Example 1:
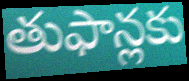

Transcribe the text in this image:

తుఫాన్లకు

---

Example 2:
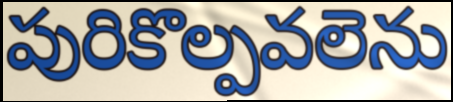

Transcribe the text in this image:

పురికొల్పవలెను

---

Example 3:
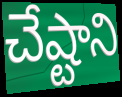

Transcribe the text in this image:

చేష్టాని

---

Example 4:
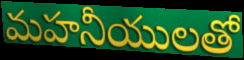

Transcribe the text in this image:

మహనీయులతో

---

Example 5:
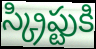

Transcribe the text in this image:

స్క్రిప్టుకి